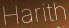
Harith